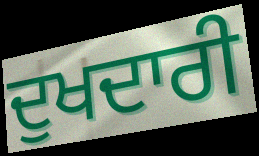
ਦੁਖਦਾਰੀ